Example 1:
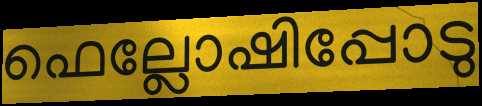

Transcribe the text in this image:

ഫെല്ലോഷിപ്പോടു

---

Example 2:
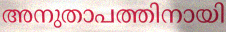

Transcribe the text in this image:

അനുതാപത്തിനായി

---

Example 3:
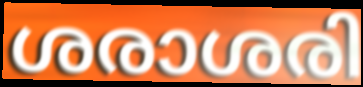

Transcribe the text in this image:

ശരാശരി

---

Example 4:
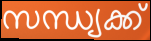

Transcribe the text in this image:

സന്ധ്യക്ക്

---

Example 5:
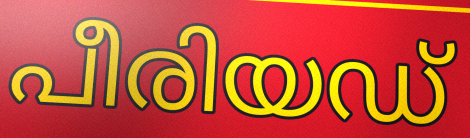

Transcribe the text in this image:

പീരിയഡ്